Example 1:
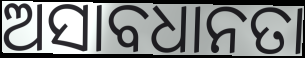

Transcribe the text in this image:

ଅସାବଧାନତା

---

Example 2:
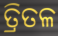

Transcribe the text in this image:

ତ୍ରିତଳ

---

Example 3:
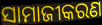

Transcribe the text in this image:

ସାମାଜୀକରଣ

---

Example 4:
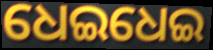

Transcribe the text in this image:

ଧେଇଧେଇ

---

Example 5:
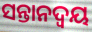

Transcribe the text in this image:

ସନ୍ତାନଦ୍ୱୟ